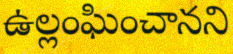
ఉల్లంఘించానని